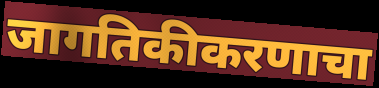
जागतिकीकरणाचा